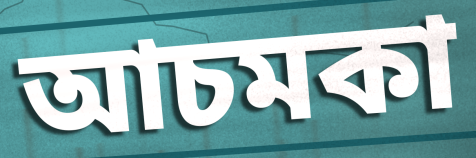
আচমকা